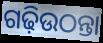
ଗଢ଼ିଉଠନ୍ତା